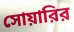
সোয়ারির